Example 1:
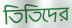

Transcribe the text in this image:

তিতিদের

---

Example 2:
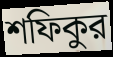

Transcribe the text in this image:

শফিকুর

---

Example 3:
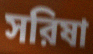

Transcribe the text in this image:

সরিষা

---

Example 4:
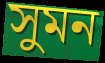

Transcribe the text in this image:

সুমন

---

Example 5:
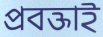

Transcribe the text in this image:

প্রবক্তাই